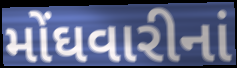
મોંઘવારીનાં